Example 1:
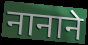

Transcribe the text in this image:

नानाने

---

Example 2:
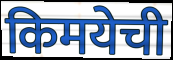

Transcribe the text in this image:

किमयेची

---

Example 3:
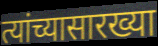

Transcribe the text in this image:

त्यांच्यासारख्या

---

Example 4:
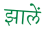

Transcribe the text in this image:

झालें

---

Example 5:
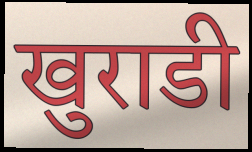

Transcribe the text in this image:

खुराडी